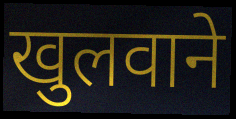
खुलवाने